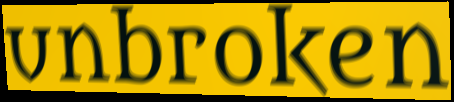
unbroken